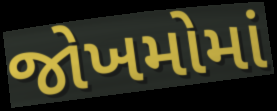
જોખમોમાં